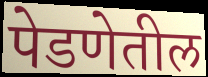
पेडणेतील